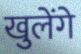
खुलेंगे